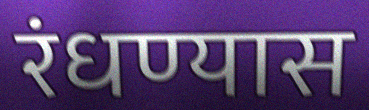
रंधण्यास